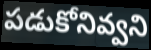
పడుకోనివ్వని